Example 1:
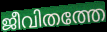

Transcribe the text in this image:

ജീവിതത്തേ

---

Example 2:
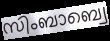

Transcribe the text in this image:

സിംബാബ്വെ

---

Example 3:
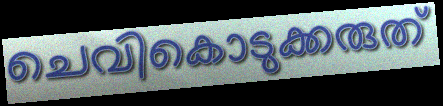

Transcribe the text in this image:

ചെവികൊടുക്കരുത്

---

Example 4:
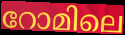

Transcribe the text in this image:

റോമിലെ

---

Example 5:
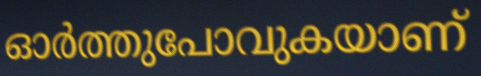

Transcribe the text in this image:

ഓർത്തുപോവുകയാണ്